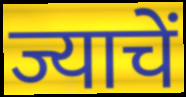
ज्याचें